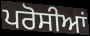
ਪਰੋਸੀਆਂ